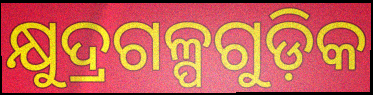
କ୍ଷୁଦ୍ରଗଳ୍ପଗୁଡ଼ିକ